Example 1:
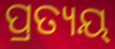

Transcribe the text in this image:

ପ୍ରତ୍ଯୟ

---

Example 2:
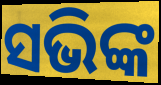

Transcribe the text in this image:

ସଭିଙ୍କ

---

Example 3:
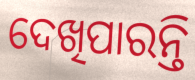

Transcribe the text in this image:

ଦେଖିପାରନ୍ତି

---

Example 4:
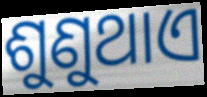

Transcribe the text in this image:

ଶୁଣୁଥାଏ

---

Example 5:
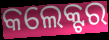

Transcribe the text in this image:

କଲେକ୍ଟର